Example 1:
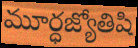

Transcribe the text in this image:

మూర్ధజ్యోతిషి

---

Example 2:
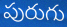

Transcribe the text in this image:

పురుగు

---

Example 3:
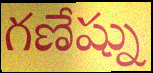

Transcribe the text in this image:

గణేష్ను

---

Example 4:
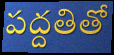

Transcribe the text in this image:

పద్దతితో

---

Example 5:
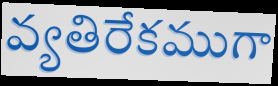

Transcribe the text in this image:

వ్యతిరేకముగా